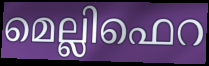
മെല്ലിഫെറ